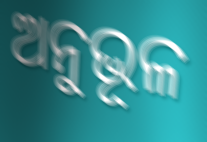
ଅନୁଭୂଳ